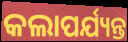
କଲାପର୍ଯ୍ୟନ୍ତ